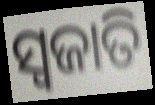
ସ୍ବଜାତି